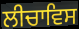
ਲੀਚਾਵਿਸ